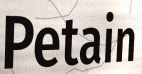
Petain